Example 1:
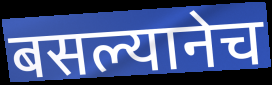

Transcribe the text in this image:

बसल्यानेच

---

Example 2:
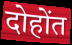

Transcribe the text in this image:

दोहोंत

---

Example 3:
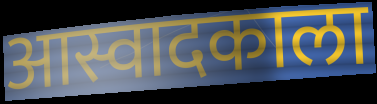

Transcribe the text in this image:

आस्वादकाला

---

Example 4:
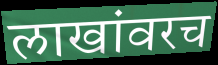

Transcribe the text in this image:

लाखांवरच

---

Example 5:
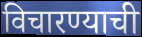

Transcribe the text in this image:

विचारण्याची